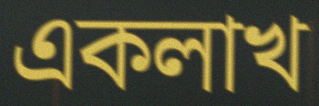
একলাখ